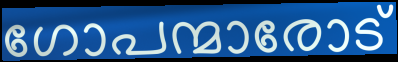
ഗോപന്മാരോട്